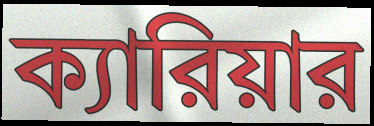
ক্যারিয়ার